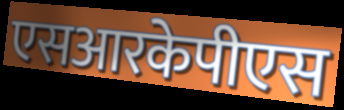
एसआरकेपीएस